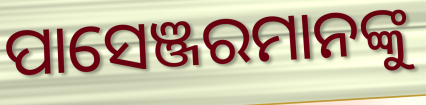
ପାସେଞ୍ଜରମାନଙ୍କୁ